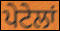
ਪੇਟੇਲਾਂ